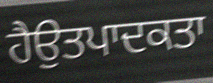
ਹੈਉਤਪਾਦਕਤਾ